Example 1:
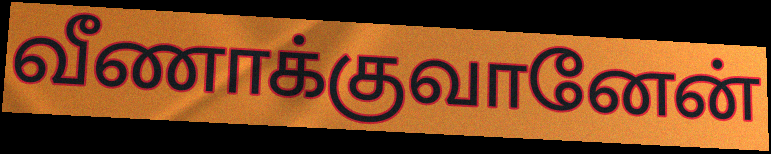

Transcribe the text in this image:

வீணாக்குவானேன்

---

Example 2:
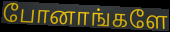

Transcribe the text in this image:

போனாங்களே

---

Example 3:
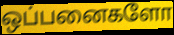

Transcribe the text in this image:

ஒப்பனைகளோ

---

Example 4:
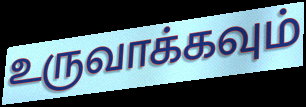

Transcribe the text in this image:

உருவாக்கவும்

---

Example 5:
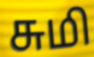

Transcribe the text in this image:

சுமி